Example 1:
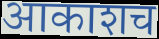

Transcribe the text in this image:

आकाशच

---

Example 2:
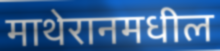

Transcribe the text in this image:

माथेरानमधील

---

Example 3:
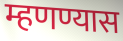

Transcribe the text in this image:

म्हणण्यास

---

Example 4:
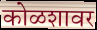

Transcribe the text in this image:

कोळशावर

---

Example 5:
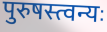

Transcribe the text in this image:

पुरुषस्त्वन्यः